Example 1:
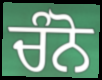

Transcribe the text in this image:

ਚੰਨੋ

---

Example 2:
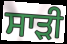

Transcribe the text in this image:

ਸਾੜੀ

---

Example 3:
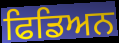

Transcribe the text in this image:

ਫਿਡਿਅਨ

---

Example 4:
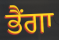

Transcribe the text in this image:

ਭੈਂਗਾ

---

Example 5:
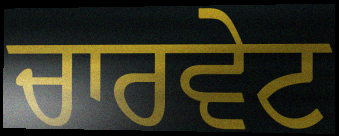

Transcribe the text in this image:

ਚਾਰਵੇਟ